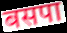
बसपा